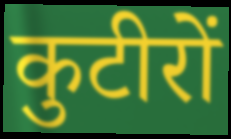
कुटीरों